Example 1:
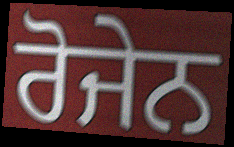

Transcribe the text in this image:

ਰੋਜੇਨ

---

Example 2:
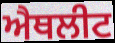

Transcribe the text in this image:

ਐਥਲੀਟ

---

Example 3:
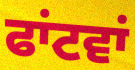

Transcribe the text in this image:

ਫਾਂਟਵਾਂ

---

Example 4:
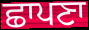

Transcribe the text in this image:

ਛਾਪਣਾ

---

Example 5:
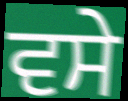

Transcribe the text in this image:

ਵਸੇ